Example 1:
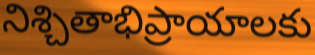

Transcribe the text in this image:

నిశ్చితాభిప్రాయాలకు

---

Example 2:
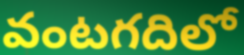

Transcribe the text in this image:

వంటగదిలో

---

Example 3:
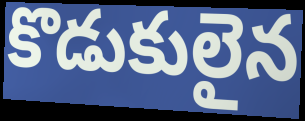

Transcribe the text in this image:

కొడుకులైన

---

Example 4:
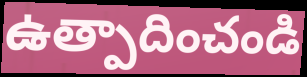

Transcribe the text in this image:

ఉత్పాదించండి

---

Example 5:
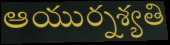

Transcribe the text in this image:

ఆయుర్నశ్యతి